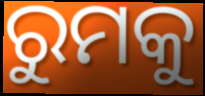
ରୁମକୁ